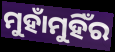
ମୁହାଁମୁହିଁର